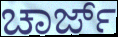
ಚಾರ್ಜ್